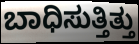
ಬಾಧಿಸುತ್ತಿತ್ತು